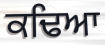
ਕਢਿਆ